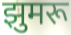
झुमरू